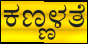
ಕಣ್ಣಳತೆ